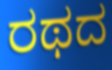
ರಥದ